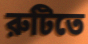
রুটিতে